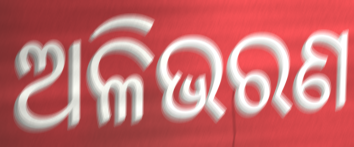
ଅଳିଭରଣ